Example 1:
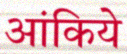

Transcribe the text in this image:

आंकिये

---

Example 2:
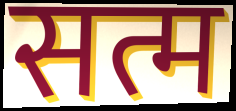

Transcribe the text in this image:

सत्म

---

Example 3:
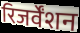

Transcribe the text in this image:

रिजर्वेंशन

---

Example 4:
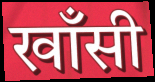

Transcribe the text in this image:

खाँसी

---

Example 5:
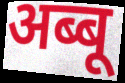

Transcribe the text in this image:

अब्बू